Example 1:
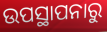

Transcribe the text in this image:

ଉପସ୍ଥାପନାରୁ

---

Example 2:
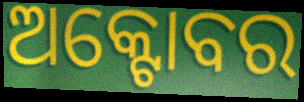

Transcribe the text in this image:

ଅକ୍ଟୋବର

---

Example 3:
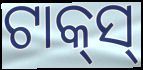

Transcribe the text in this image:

ଟାକ୍‍ସ୍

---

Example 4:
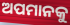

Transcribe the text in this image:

ଅପମାନକୁ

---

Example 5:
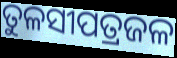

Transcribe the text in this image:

ତୁଳସୀପତ୍ରଜଳ